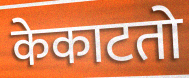
केकाटतो